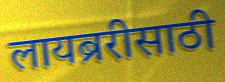
लायब्ररीसाठी